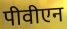
पीवीएन